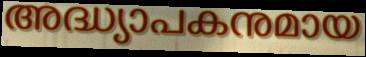
അദ്ധ്യാപകനുമായ